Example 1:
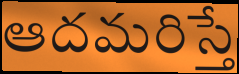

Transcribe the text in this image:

ఆదమరిస్తే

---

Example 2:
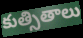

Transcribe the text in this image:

కుత్సితాలు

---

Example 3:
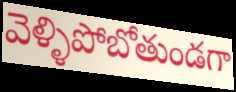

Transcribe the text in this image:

వెళ్ళిపోబోతుండగా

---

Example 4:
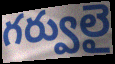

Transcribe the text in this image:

గర్వులై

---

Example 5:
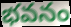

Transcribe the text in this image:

భవనం